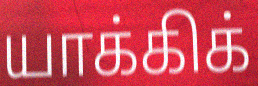
யாக்கிக்